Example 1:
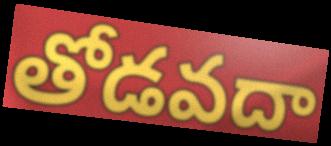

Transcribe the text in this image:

తోడవదా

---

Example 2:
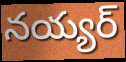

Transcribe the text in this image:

నయ్యర్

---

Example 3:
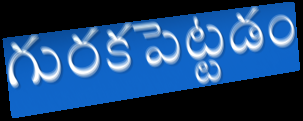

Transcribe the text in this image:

గురకపెట్టడం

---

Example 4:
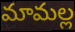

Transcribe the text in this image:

మామల్ల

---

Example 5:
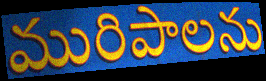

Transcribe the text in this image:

మురిపాలను